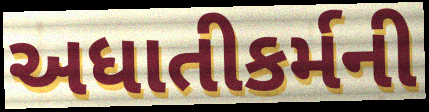
અધાતીકર્મની